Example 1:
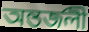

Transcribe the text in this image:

অন্তর্জলী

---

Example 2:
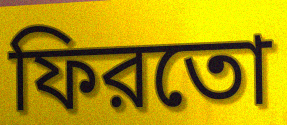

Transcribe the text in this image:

ফিরতো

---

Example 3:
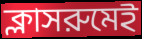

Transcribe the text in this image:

ক্লাসরুমেই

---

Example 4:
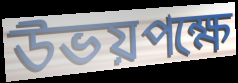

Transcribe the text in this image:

উভয়পক্ষে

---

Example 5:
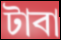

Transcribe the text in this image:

টাবা